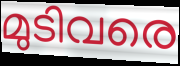
മുടിവരെ